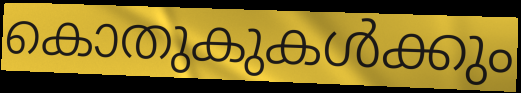
കൊതുകുകൾക്കും